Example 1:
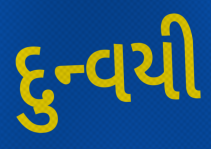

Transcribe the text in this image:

દુન્વયી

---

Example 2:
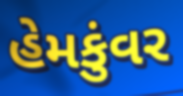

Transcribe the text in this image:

હેમકુંવર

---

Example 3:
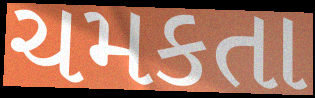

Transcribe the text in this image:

ચમકતા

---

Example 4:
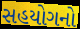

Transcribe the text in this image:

સહયોગનો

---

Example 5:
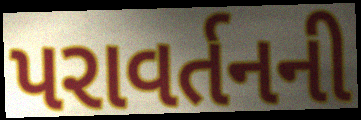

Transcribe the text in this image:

પરાવર્તનની